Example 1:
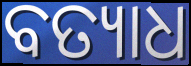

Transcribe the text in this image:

ବତ୍ୟାଧ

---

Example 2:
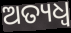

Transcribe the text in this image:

ଅତ୍ୟଧ୍ୱ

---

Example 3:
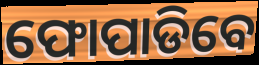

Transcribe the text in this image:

ଫୋପାଡିବେ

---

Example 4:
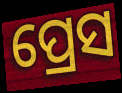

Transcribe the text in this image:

ପ୍ରେସ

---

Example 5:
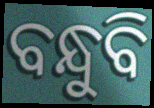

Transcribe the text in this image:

ବନ୍ଧୁବି